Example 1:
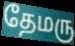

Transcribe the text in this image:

தேமரு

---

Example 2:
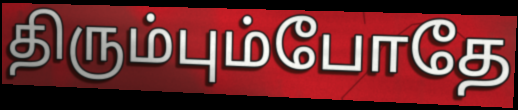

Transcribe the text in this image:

திரும்பும்போதே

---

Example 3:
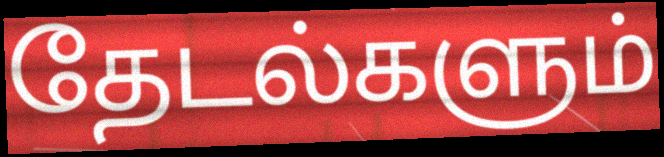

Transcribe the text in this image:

தேடல்களும்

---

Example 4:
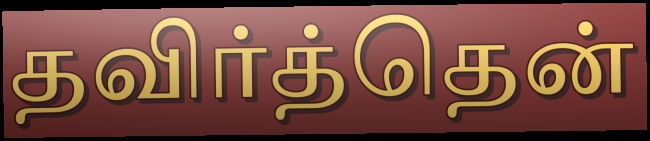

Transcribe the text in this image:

தவிர்த்தென்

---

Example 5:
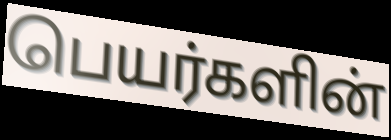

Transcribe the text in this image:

பெயர்களின்